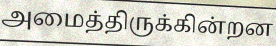
அமைத்திருக்கின்றன